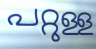
പറ്റുള്ള